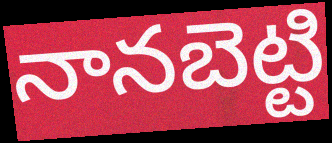
నానబెట్టి